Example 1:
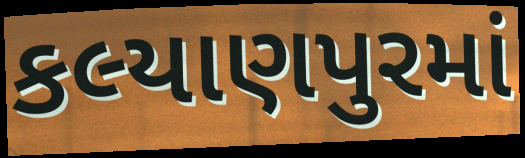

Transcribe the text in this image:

કલ્યાણપુરમાં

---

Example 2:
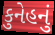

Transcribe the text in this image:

કુનેહનું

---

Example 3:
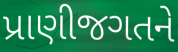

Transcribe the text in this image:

પ્રાણીજગતને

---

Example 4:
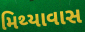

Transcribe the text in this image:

મિથ્યાવાસ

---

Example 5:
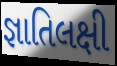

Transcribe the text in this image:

જ્ઞાતિલક્ષી